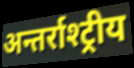
अन्तर्राश्ट्रीय